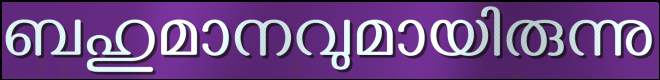
ബഹുമാനവുമായിരുന്നു